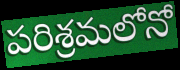
పరిశ్రమలోనో